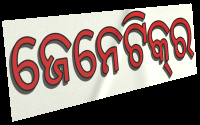
ଜେନେଟିକ୍‌ର